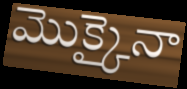
మొక్కైనా